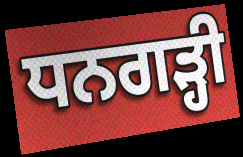
ਧਨਗੜ੍ਹੀ